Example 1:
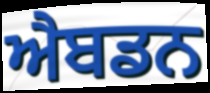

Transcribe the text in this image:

ਐਬਡਨ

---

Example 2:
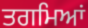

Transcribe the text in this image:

ਤਗਮਿਆਂ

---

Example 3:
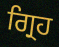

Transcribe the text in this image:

ਗ੍ਰਿਹ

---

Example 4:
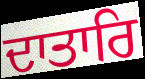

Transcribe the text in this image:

ਦਾਤਾਰਿ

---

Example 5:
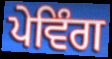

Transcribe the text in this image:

ਪੇਵਿੰਗ